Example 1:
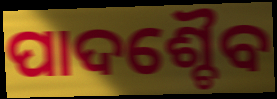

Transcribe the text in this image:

ପାଦଶ୍ଚୈବ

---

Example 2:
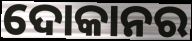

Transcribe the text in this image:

ଦୋକାନର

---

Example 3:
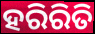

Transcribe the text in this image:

ହରିରିତି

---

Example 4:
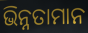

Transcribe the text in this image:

ଭିନ୍ନତାମାନ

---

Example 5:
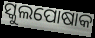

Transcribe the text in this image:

ସ୍କୁଲପୋଷାକ